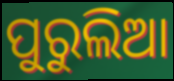
ପୁରୁଲିଆ